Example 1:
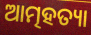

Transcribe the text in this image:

ଆତ୍ମହତ୍ୟା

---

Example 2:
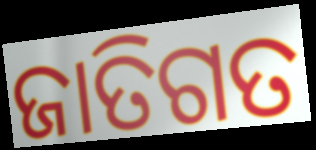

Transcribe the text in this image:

ଜାତିଗତ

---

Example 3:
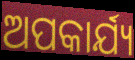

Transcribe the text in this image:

ଅପକାର୍ଯ୍ୟ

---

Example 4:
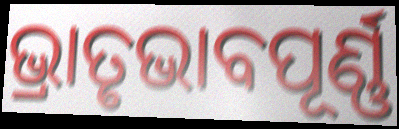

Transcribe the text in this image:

ଭ୍ରାତୃଭାବପୂର୍ଣ୍ଣ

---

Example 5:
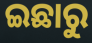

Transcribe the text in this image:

ଇଛାରୁ